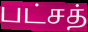
பட்சத்